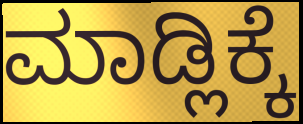
ಮಾಡ್ಲಿಕ್ಕೆ